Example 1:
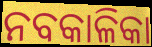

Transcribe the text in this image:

ନବକାଳିକା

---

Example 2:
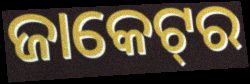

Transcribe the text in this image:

ଜାକେଟ୍‌ର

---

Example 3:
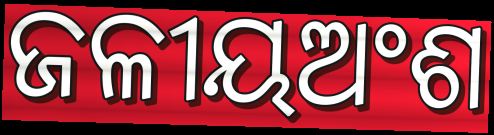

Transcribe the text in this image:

ଜଳୀୟଅଂଶ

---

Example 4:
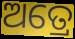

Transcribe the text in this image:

ଅତ୍ରେ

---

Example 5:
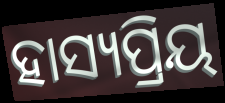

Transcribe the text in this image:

ହାସ୍ୟପ୍ରିୟ